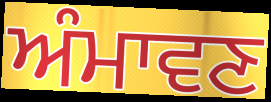
ਅੰਮਾਵਣ